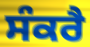
ਸੰਕਰੈ